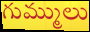
గుమ్ములు